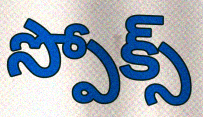
స్పోక్స్